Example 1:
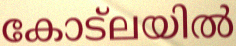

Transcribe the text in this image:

കോട്ലയിൽ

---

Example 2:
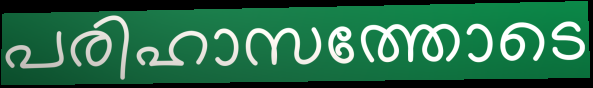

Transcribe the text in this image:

പരിഹാസത്തോടെ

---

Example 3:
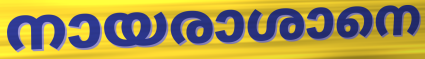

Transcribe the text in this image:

നായരാശാനെ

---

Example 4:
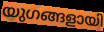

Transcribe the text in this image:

യുഗങ്ങളായി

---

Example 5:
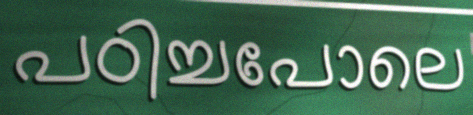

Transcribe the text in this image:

പഠിച്ചപോലെ